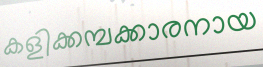
കളിക്കമ്പക്കാരനായ